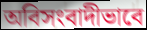
অবিসংবাদীভাবে